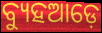
ବ୍ୟୁହଆଡ଼େ